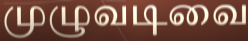
முழுவடிவை